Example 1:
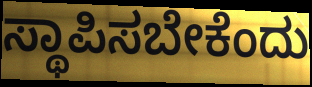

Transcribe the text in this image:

ಸ್ಥಾಪಿಸಬೇಕೆಂದು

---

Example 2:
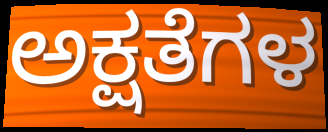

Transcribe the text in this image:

ಅಕ್ಷತೆಗಳ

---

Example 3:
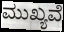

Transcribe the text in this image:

ಮುಖ್ಯವೆ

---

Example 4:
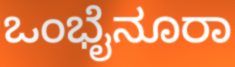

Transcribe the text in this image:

ಒಂಭೈನೂರಾ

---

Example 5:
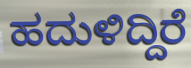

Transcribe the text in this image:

ಹದುಳಿದ್ದಿರೆ